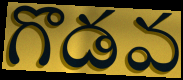
గొడవ